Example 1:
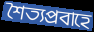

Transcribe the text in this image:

শৈত্যপ্রবাহে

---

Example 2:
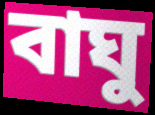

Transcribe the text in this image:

বাঘু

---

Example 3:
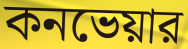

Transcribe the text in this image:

কনভেয়ার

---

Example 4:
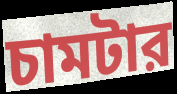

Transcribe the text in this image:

চামটার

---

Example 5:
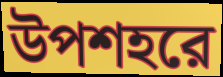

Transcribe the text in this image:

উপশহরে